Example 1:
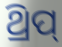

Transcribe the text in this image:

ଥ୍ରିପ୍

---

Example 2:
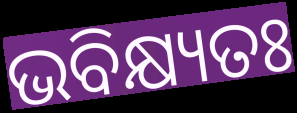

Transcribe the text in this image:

ଭବିକ୍ଷ୍ୟତଃ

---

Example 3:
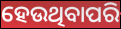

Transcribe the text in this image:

ହେଉଥିବାପରି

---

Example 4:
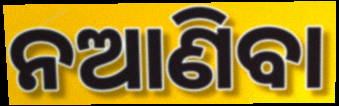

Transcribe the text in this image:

ନଆଣିବା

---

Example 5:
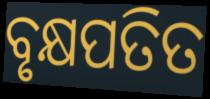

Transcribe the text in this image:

ବୃକ୍ଷପତିତ